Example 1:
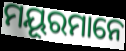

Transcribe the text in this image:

ମୟୂରମାନେ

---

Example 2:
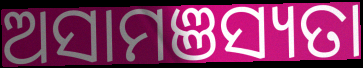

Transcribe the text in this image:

ଅସାମଞସ୍ୟତା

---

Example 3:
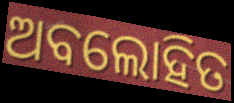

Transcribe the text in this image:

ଅବଲୋହିତ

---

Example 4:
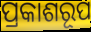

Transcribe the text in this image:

ପ୍ରକାଶରୂପ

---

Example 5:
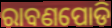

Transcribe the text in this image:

ରାବଣପୋଡି